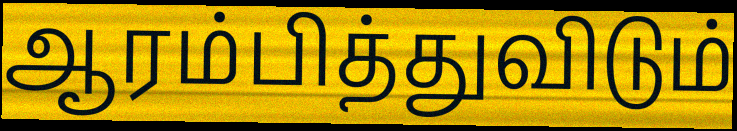
ஆரம்பித்துவிடும்